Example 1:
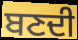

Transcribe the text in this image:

ਬਣਦੀ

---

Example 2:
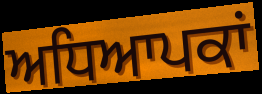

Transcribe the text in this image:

ਅਧਿਆਪਕਾਂ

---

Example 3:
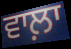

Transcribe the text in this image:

ਵਾਲ਼ਾ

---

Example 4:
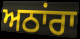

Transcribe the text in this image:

ਅਠਾਂਰਾ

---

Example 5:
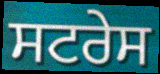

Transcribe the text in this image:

ਸਟਰੇਸ